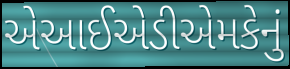
એઆઈએડીએમકેનું